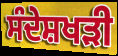
ਸੰਦੇਸ਼ਖੜੀ